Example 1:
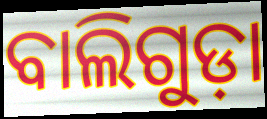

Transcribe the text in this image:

ବାଲିଗୁଡ଼ା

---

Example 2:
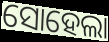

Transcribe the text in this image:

ସୋହେଲା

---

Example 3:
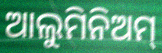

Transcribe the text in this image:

ଆଲୁମିନିଅମ୍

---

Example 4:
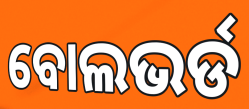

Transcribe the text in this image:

ବୋଲଭର୍ଡ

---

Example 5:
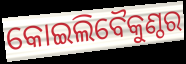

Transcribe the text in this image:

କୋଇଲିବୈକୁଣ୍ଠର